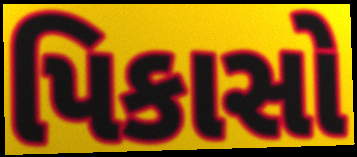
પિકાસો